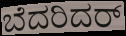
ಬೆದರಿದರ್